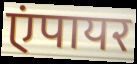
एंपायर